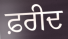
ਫ਼ਰੀਦ